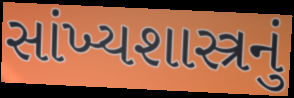
સાંખ્યશાસ્ત્રનું